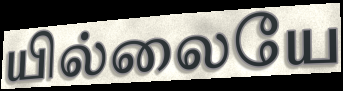
யில்லையே